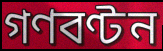
গণবণ্টন